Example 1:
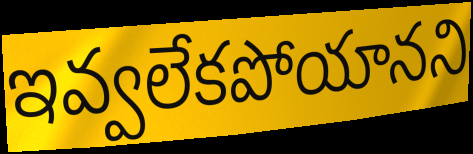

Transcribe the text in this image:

ఇవ్వలేకపోయానని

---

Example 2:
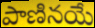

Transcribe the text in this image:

పాణినయే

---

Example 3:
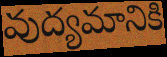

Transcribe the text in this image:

వుద్యమానికి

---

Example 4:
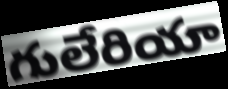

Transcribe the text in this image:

గులేరియా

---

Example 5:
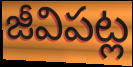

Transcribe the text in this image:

జీవిపట్ల